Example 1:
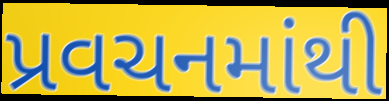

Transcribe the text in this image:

પ્રવચનમાંથી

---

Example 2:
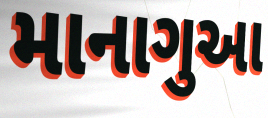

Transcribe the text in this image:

માનાગુઆ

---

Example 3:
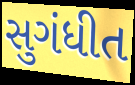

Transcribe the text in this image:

સુગંધીત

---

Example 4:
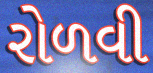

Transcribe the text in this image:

રોળવી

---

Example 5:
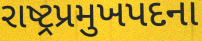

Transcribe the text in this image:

રાષ્ટ્રપ્રમુખપદના